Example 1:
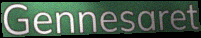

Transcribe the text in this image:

Gennesaret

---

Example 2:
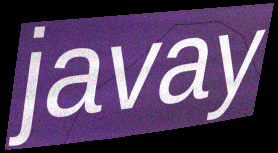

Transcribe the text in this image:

javay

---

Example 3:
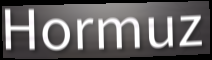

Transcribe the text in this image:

Hormuz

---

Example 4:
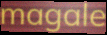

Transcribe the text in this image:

magale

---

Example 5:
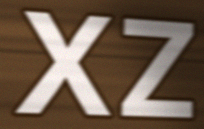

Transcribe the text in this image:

XZ